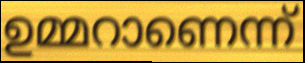
ഉമ്മറാണെന്ന്